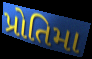
પ્રોતિમા